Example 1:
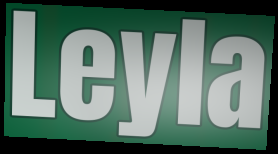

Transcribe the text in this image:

Leyla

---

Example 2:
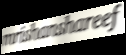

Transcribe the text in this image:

mrishanshareef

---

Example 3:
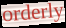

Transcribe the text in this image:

orderly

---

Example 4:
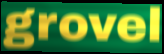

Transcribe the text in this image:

grovel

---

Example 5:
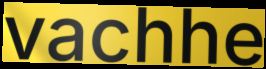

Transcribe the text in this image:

vachhe